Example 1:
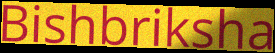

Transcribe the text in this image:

Bishbriksha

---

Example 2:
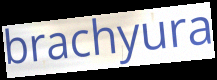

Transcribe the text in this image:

brachyura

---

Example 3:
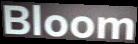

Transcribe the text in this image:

Bloom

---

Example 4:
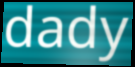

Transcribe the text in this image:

dady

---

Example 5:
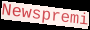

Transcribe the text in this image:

Newspremi